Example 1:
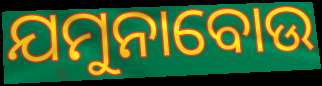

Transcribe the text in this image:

ଯମୁନାବୋଉ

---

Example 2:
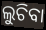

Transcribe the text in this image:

ଲୁଚିବା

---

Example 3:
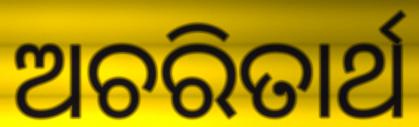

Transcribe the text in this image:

ଅଚରିତାର୍ଥ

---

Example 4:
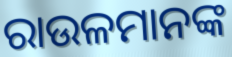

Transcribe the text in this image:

ରାଉଳମାନଙ୍କ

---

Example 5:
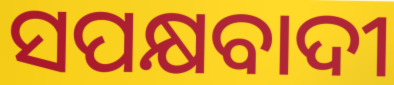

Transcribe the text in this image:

ସପକ୍ଷବାଦୀ